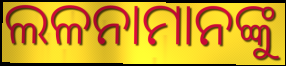
ଲଳନାମାନଙ୍କୁ